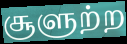
சூளுற்ற